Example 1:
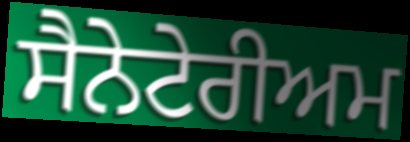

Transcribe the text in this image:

ਸੈਨੇਟੇਰੀਅਮ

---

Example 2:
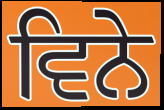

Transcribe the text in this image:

ਵਿਨੇ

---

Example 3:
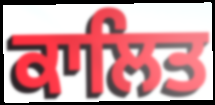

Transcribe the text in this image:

ਕਾਲਿਤ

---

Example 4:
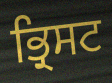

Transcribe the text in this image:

ਭ੍ਰਿਸਟ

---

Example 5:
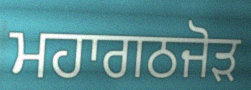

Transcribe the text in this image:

ਮਹਾਗਠਜੋੜ